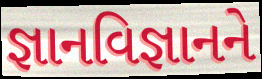
જ્ઞાનવિજ્ઞાનને